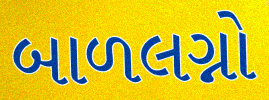
બાળલગ્નો